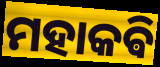
ମହାକଵି